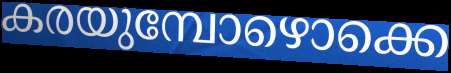
കരയുമ്പോഴൊക്കെ